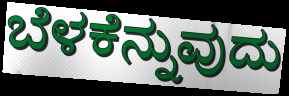
ಬೆಳಕೆನ್ನುವುದು